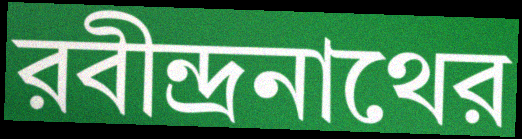
রবীন্দ্রনাথের